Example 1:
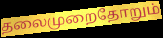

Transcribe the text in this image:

தலைமுறைதோறும்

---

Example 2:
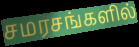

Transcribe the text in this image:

சமரசங்களில்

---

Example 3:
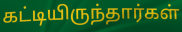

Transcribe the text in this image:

கட்டியிருந்தார்கள்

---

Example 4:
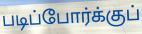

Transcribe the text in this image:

படிப்போர்க்குப்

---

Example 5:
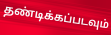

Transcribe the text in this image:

தண்டிக்கப்படவும்